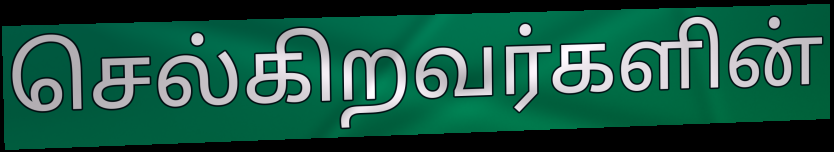
செல்கிறவர்களின்